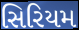
સિરિયમ